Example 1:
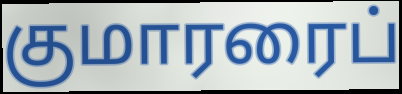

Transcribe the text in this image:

குமாரரைப்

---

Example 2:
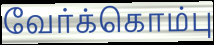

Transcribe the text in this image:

வேர்க்கொம்பு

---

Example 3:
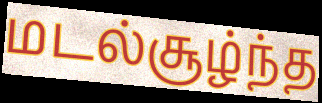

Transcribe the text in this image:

மடல்சூழ்ந்த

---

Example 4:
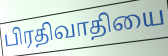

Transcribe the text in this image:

பிரதிவாதியை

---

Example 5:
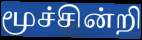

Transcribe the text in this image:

மூச்சின்றி